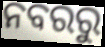
ନବରରୁ